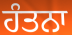
ਹੰਤਨਾ